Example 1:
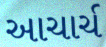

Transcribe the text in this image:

આચાર્ચ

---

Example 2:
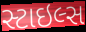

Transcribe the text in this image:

સ્ટાઇલ્સ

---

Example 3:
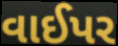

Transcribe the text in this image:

વાઈપર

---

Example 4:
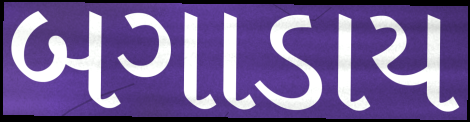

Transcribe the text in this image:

બગાડાય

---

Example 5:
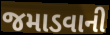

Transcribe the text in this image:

જમાડવાની